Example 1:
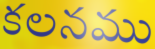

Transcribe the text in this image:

కలనము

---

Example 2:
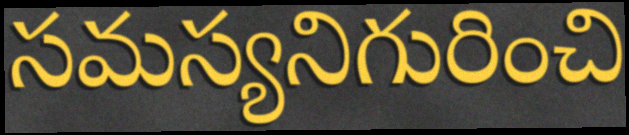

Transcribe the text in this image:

సమస్యనిగురించి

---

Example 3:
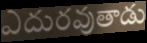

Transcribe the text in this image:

ఎదురవుతాడు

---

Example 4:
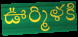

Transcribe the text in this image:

ఊర్మిళకి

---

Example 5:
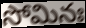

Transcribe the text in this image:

సోమినః